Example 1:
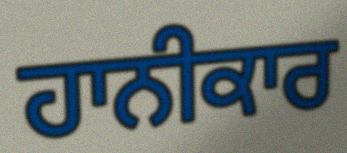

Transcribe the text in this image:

ਹਾਨੀਕਾਰ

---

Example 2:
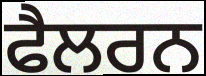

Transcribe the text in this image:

ਫੈਲਰਨ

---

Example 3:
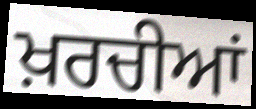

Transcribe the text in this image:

ਖ਼ਰਚੀਆਂ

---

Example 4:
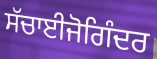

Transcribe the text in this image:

ਸੱਚਾਈਜੋਗਿੰਦਰ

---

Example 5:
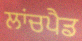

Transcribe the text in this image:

ਲਾਂਚਪੈਡ